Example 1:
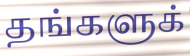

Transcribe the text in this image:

தங்களுக்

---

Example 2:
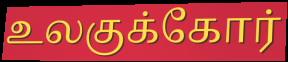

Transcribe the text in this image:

உலகுக்கோர்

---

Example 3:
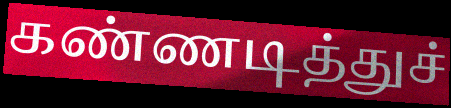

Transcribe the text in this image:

கண்ணடித்துச்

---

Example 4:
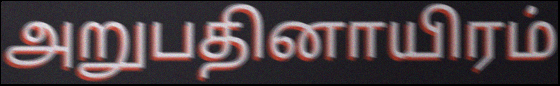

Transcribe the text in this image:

அறுபதினாயிரம்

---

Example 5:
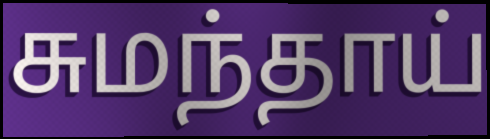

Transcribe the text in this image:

சுமந்தாய்